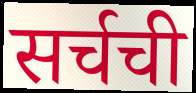
सर्चची